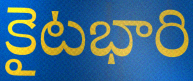
కైటభారి